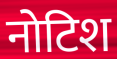
नोटिश